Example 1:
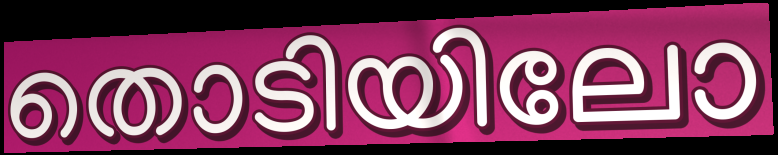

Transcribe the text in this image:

തൊടിയിലോ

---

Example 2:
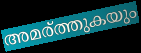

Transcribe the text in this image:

അമര്ത്തുകയും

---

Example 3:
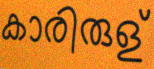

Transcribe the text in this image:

കാരിരുള്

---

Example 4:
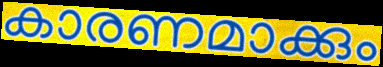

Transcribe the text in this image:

കാരണമാക്കും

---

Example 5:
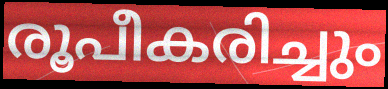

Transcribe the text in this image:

രൂപീകരിച്ചും